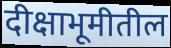
दीक्षाभूमीतील